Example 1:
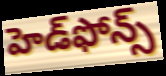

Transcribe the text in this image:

హెడ్‌ఫోన్స్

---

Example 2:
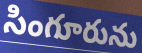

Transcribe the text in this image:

సింగూరును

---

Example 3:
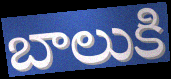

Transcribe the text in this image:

బాలుకి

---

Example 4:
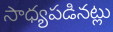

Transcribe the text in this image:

సాధ్యపడినట్లు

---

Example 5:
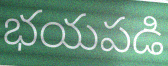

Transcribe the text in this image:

భయపడి